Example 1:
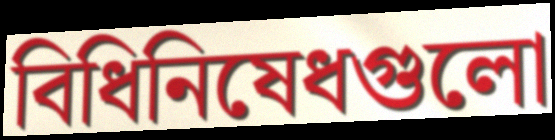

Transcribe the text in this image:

বিধিনিষেধগুলো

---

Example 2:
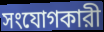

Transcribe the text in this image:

সংযোগকারী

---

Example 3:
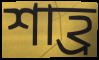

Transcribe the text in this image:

শাহ্র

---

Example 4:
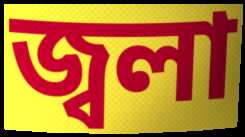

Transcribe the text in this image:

জ্বলা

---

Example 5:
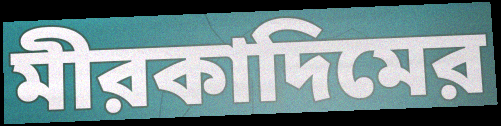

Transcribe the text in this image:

মীরকাদিমের